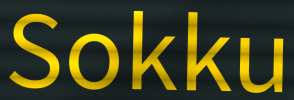
Sokku